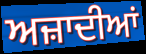
ਅਜ਼ਾਦੀਆਂ